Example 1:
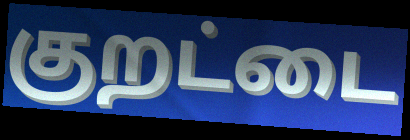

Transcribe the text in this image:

குறட்டை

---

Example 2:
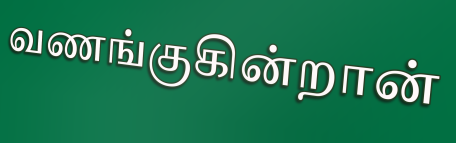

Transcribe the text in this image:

வணங்குகின்றான்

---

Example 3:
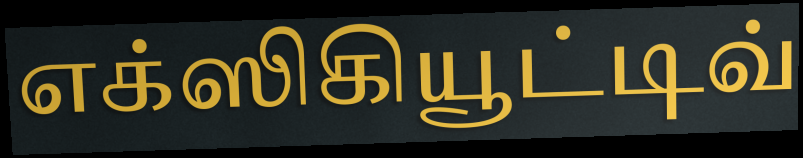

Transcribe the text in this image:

எக்ஸிகியூட்டிவ்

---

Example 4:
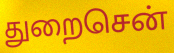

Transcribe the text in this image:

துறைசென்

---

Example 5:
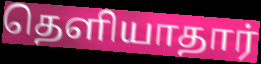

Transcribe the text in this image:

தெளியாதார்